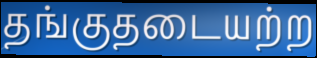
தங்குதடையற்ற